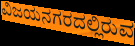
ವಿಜಯನಗರದಲ್ಲಿರುವ